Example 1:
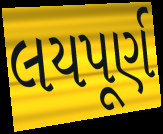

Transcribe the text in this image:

લયપૂર્ણ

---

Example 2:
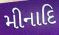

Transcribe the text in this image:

મીનાદિ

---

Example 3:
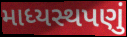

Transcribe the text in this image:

માધ્યસ્થપણું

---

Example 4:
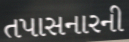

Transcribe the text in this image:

તપાસનારની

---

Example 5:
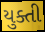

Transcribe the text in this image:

યુક્તી